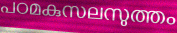
പഠമകുസലസുത്തം